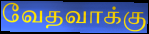
வேதவாக்கு